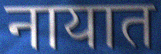
नायात